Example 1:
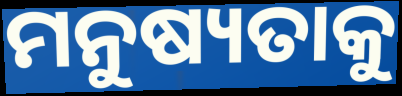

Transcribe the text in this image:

ମନୁଷ୍ୟତାକୁ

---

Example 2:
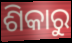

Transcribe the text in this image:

ଶିକାରୁ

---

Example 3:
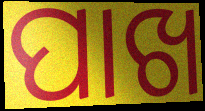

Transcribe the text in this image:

ପାଖ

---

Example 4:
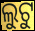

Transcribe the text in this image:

ଲୁଟୁ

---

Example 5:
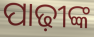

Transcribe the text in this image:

ପାଢ଼ୀଙ୍କ